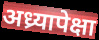
अध्र्यापेक्षा